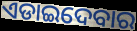
ଏଡାଇଦେବାର